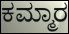
ಕಮ್ಮಾರ